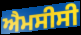
ਐਮਸੀਸੀ